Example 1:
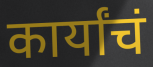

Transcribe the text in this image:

कार्यांचं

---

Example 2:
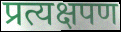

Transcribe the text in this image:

प्रत्यक्षपण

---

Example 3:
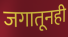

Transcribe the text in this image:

जगातूनही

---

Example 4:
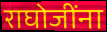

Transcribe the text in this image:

राघोजींना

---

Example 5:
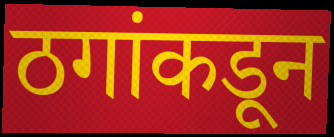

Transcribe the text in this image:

ठगांकडून